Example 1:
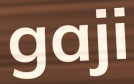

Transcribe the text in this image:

gaji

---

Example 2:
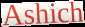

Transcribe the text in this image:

Ashich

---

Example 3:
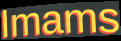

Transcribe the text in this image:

Imams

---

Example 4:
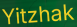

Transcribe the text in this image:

Yitzhak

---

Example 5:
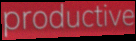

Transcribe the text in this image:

productive